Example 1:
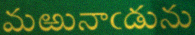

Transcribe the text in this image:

మఱునాఁడును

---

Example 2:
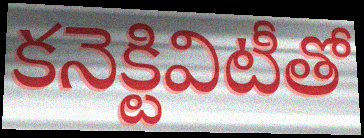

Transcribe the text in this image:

కనెక్టివిటీతో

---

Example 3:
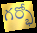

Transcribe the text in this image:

గర్భో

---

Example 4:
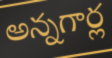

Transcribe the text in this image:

అన్నగార్ల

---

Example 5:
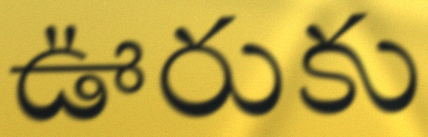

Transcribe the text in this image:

ఊరుకు